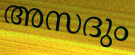
അസദും